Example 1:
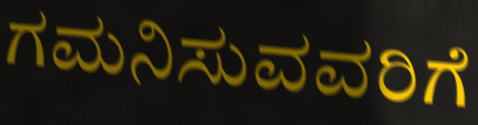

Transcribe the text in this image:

ಗಮನಿಸುವವರಿಗೆ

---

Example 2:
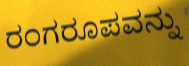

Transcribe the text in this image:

ರಂಗರೂಪವನ್ನು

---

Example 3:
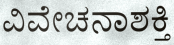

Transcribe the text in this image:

ವಿವೇಚನಾಶಕ್ತಿ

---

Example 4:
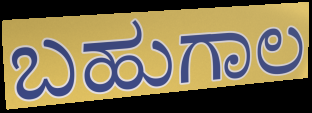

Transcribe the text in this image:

ಬಹುಗಾಲ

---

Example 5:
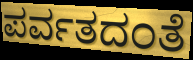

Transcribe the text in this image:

ಪರ್ವತದಂತೆ